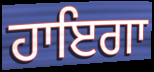
ਹਾਇਗਾ